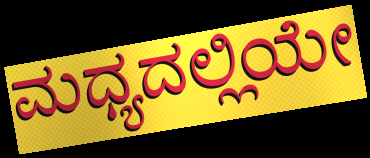
ಮಧ್ಯದಲ್ಲಿಯೇ